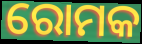
ରୋମକ